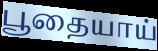
பூதையாய்